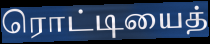
ரொட்டியைத்